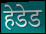
हेडेड